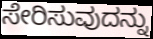
ಸೇರಿಸುವುದನ್ನು